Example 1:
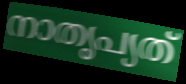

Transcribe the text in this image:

നാതൃപ്യത്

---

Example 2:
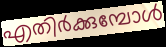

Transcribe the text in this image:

എതിർക്കുമ്പോൾ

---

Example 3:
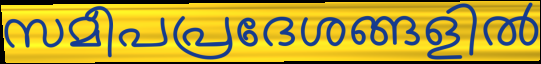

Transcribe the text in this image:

സമീപപ്രദേശങ്ങളിൽ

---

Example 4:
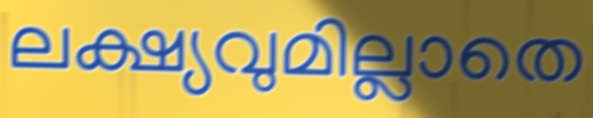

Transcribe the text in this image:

ലക്ഷ്യവുമില്ലാതെ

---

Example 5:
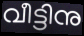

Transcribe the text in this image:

വീട്ടിനു